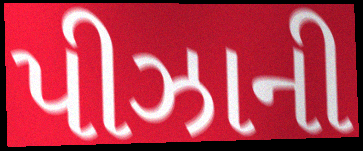
પીઝાની